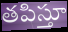
తపిస్తూ